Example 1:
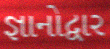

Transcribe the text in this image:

જ્ઞાનોદ્વાર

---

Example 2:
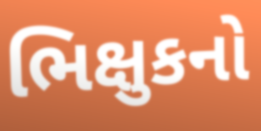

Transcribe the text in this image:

ભિક્ષુકનો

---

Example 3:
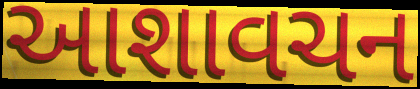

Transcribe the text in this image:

આશાવચન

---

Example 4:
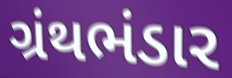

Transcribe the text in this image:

ગ્રંથભંડાર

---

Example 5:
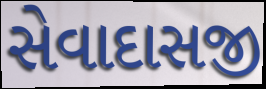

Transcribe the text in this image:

સેવાદાસજી